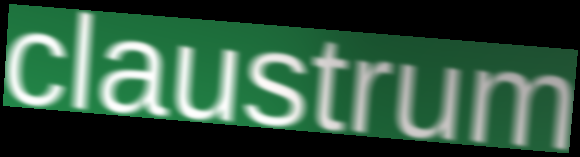
claustrum